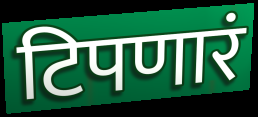
टिपणारं